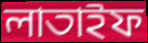
লাতাইফ